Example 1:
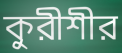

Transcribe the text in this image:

কুরীশীর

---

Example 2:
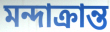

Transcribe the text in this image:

মন্দাক্রান্ত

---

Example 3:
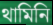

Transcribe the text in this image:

থামিনি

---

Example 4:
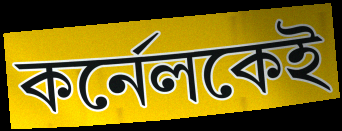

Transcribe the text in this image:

কর্নেলকেই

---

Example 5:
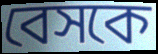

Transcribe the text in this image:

বেসকে